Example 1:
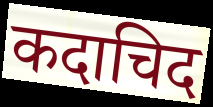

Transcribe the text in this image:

कदाचिद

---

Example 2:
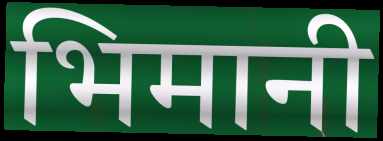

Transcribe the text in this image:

भिमानी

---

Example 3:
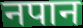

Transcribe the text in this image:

नपान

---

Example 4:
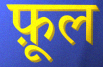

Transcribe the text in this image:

फ़ूल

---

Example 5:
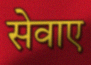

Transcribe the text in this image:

सेवाए